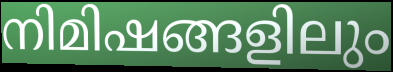
നിമിഷങ്ങളിലും